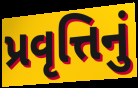
પ્રવૃત્તિનું